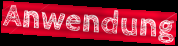
Anwendung